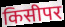
किसीपर